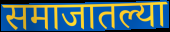
समाजातल्‍या